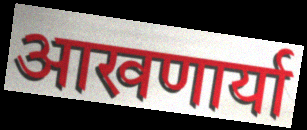
आखणार्या